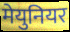
मेयुनियर